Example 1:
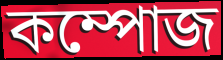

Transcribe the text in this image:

কম্পোজ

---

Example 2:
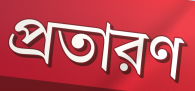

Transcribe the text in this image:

প্রতারণ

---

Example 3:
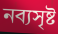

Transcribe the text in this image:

নব্যসৃষ্ট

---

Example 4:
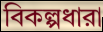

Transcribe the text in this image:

বিকল্পধারা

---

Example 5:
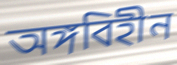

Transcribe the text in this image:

অঙ্গবিহীন